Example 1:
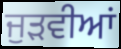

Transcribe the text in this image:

ਜੁੜਵੀਆਂ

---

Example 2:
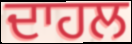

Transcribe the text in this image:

ਦਾਹਲ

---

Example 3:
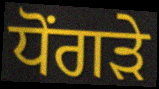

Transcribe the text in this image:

ਧੋਂਗੜੇ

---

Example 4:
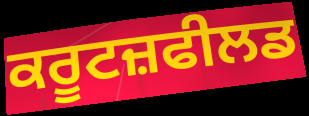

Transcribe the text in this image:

ਕਰੂਟਜ਼ਫੀਲਡ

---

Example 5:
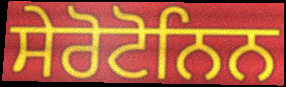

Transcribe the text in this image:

ਸੇਰੋਟੋਨਿਨ